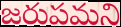
జరుపమని